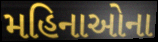
મહિનાઓના